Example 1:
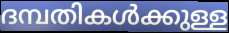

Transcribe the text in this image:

ദമ്പതികൾക്കുള്ള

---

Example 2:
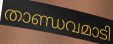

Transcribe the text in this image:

താണ്ഡവമാടി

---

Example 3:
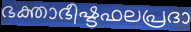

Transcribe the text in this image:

ഭക്താഭീഷ്ടഫലപ്രദാ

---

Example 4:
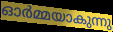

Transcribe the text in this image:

ഓർമ്മയാകുന്നു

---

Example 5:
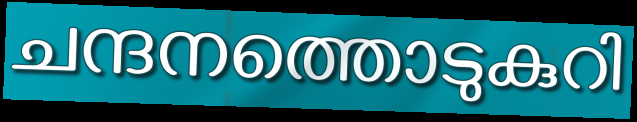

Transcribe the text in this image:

ചന്ദനത്തൊടുകുറി